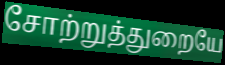
சோற்றுத்துறையே